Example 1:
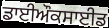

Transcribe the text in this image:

ਡਾਈਔਕਸਾਈਡ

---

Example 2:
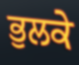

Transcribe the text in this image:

ਭੁਲਕੇ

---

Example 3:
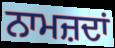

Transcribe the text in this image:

ਨਾਮਜ਼ਦਾਂ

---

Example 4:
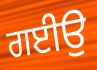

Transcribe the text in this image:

ਗਈਉ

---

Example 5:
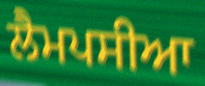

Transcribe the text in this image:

ਲੈਮਪਸੀਆ